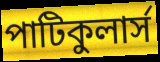
পাটিকুলার্স